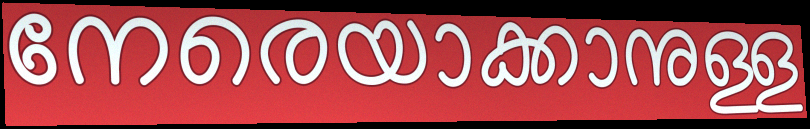
നേരെയാക്കാനുള്ള